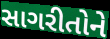
સાગરીતોને